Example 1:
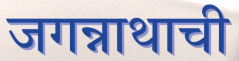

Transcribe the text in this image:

जगन्नाथाची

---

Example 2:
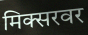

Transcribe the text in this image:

मिक्‍सरवर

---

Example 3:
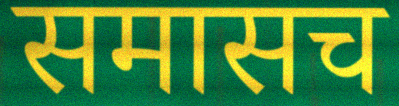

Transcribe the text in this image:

समासच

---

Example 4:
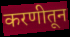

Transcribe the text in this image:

करणीतून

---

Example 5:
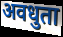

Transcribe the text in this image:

अवधुता